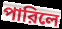
পারিলে